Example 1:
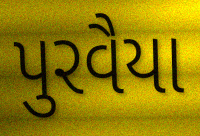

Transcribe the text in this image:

પુરવૈયા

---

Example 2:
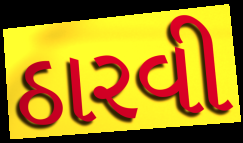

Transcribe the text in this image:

ઠારવી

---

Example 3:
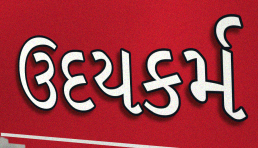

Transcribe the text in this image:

ઉદયકર્મ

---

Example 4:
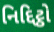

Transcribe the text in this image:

નિદ્દિટ્ઠો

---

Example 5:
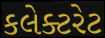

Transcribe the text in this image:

કલેક્ટરેટ